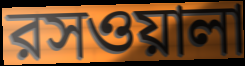
রসওয়ালা